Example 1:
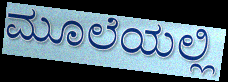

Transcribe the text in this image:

ಮೂಲೆಯಲ್ಲಿ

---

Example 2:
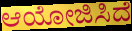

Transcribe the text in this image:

ಆಯೋಜಿಸಿದೆ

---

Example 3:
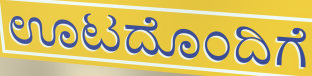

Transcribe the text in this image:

ಊಟದೊಂದಿಗೆ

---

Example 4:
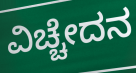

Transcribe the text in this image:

ವಿಚ್ಚೇದನ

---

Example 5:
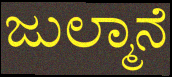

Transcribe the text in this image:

ಜುಲ್ಮಾನೆ